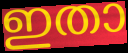
ഇതാ